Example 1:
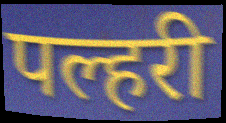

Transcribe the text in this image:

पल्हरी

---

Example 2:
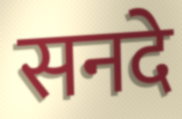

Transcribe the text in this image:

सनदे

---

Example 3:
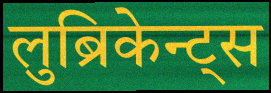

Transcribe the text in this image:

लुब्रिकेन्ट्स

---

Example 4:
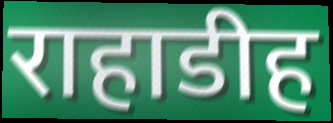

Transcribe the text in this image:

राहाडीह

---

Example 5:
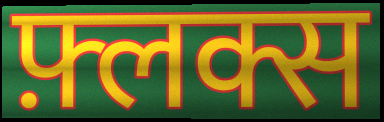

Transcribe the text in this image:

फ़्लक्स